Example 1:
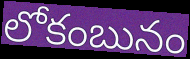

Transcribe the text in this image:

లోకంబునం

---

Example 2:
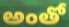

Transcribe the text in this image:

అంతో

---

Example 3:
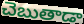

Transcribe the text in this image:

చెబుతాడా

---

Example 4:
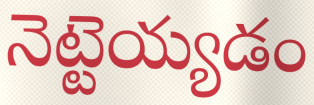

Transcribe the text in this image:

నెట్టెయ్యడం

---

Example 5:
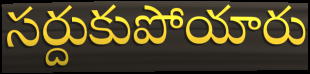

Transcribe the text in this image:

సర్దుకుపోయారు